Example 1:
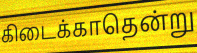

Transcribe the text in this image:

கிடைக்காதென்று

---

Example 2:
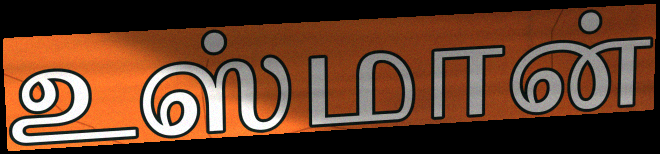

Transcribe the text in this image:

உஸ்மான்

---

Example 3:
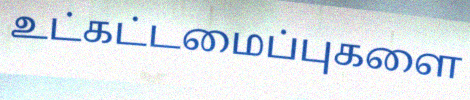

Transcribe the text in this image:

உட்கட்டமைப்புகளை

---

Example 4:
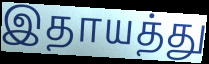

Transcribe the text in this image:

இதாயத்து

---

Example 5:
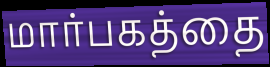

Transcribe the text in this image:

மார்பகத்தை